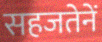
सहजतेनें